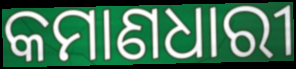
କମାଣଧାରୀ